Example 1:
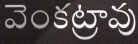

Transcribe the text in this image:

వెంకట్రావు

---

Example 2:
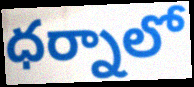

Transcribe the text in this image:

ధర్నాలో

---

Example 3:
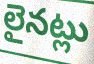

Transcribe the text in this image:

లైనట్లు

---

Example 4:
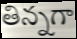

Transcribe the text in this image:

తిన్నగా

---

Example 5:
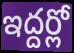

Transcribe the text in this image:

ఇద్దర్లో